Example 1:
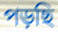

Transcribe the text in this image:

পড়ছি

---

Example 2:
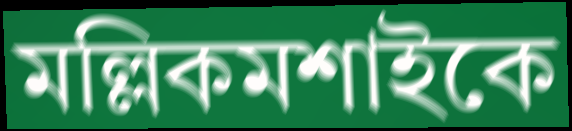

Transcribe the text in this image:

মল্লিকমশাইকে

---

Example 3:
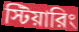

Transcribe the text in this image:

স্টিয়ারিং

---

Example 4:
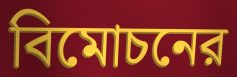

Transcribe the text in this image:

বিমোচনের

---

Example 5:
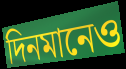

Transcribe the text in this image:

দিনমানেও